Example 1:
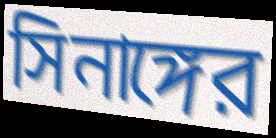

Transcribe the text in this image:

সিনাঙ্গের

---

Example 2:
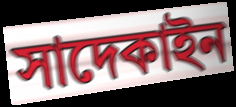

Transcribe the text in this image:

সাদেকাইন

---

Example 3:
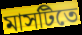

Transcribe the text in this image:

মাসটিতে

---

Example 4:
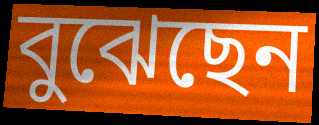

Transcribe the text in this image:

বুঝেছেন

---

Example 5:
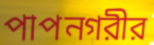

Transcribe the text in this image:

পাপনগরীর